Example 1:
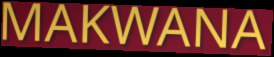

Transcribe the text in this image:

MAKWANA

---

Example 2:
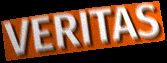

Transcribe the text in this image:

VERITAS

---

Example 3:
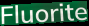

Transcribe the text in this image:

Fluorite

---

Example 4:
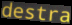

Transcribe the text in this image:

destra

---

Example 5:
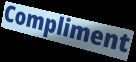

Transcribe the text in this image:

Compliment